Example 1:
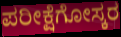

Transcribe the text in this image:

ಪರೀಕ್ಷೆಗೋಸ್ಕರ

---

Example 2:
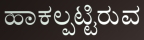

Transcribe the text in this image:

ಹಾಕಲ್ಪಟ್ಟಿರುವ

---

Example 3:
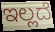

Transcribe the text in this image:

ಇಲ್ಲದೆ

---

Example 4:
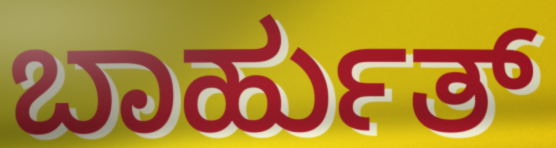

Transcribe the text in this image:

ಬಾರ್ಹುತ್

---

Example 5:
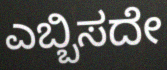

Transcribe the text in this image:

ಎಬ್ಬಿಸದೇ